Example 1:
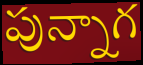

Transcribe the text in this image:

పున్నాగ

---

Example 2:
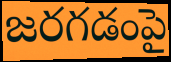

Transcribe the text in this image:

జరగడంపై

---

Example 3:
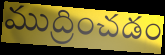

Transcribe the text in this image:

ముద్రించడం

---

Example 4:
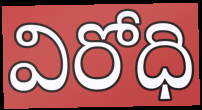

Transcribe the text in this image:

విరోధి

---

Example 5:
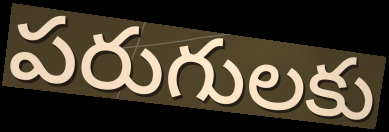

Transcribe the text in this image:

పరుగులకు